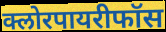
क्लोरपायरीफॉस